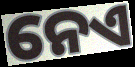
ନେଏ